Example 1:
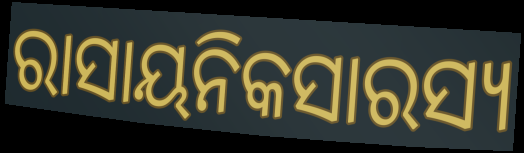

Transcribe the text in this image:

ରାସାୟନିକସାରସ୍ୟ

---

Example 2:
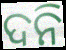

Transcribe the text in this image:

ଦନି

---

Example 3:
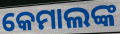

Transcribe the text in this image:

କେମାଲଙ୍କ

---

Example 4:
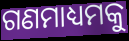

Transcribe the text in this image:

ଗଣମାଧ୍ୟମକୁ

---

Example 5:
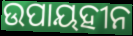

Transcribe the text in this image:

ଉପାୟହୀନ